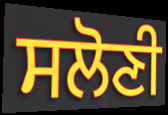
ਸਲੋਣੀ